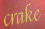
crake